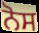
ਨੋਸ